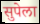
सुपेला